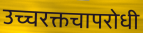
उच्चरक्तचापरोधी